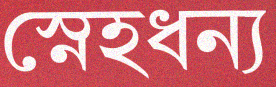
স্নেহধন্য